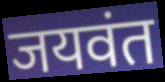
जयवंत